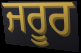
ਜਰੂਰ